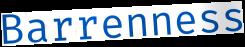
Barrenness